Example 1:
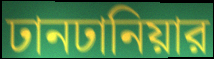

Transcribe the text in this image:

ঢানঢানিয়ার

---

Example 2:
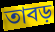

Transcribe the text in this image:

তাবড়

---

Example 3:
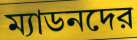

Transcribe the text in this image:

ম্যাডনদের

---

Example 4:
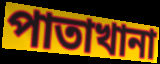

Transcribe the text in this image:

পাতাখানা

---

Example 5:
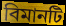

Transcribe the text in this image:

বিমানটি